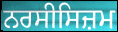
ਨਰਸੀਸਿਜ਼ਮ